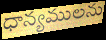
ధాన్యములను